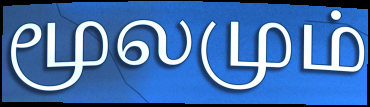
மூலமும்